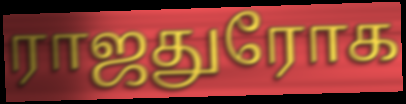
ராஜதுரோக